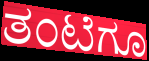
ತಂಟೆಗೂ